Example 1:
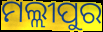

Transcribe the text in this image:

ମଲ୍ଲୀପୁର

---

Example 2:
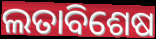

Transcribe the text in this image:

ଲତାବିଶେଷ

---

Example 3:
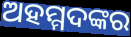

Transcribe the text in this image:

ଅହମ୍ମଦଙ୍କର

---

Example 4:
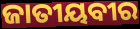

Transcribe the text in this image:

ଜାତୀୟବୀର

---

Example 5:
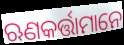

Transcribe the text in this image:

ଋଣକର୍ତ୍ତାମାନେ